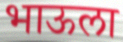
भाऊला